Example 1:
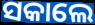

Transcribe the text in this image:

ସକାଲେ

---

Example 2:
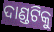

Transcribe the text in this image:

ଦାଣ୍ଡଟିକୁ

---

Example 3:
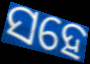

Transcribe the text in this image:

ସହେ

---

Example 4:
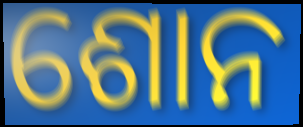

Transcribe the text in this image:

ଶୋନ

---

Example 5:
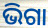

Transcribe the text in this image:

ଭିଗା